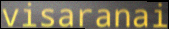
visaranai